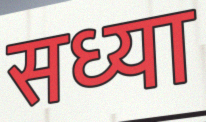
सध्या